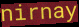
nirnay